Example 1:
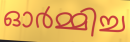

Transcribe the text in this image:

ഓർമ്മിച്ച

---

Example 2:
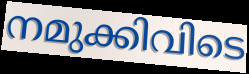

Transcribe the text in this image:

നമുക്കിവിടെ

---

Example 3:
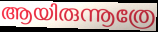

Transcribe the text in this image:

ആയിരുന്നൂത്രേ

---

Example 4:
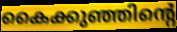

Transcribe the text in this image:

കൈക്കുഞ്ഞിന്റെ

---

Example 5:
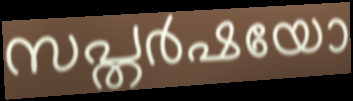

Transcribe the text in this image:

സപ്തർഷയോ